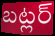
బట్లర్